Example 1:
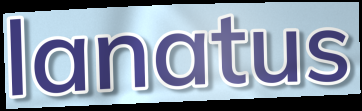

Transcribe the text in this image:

lanatus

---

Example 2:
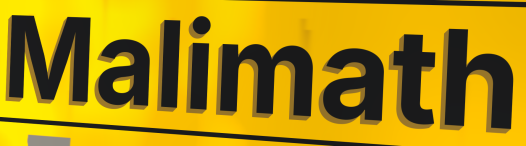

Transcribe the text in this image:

Malimath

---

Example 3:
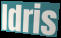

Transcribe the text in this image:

Idris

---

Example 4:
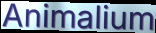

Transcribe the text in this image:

Animalium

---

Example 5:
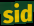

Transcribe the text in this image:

sid